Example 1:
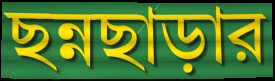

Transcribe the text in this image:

ছন্নছাড়ার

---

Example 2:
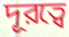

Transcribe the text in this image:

দূরত্বে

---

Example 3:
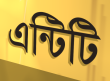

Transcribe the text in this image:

এন্টিটি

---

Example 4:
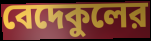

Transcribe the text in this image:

বেদেকুলের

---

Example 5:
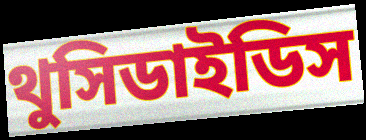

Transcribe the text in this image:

থুসিডাইডিস